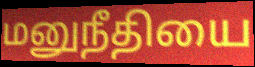
மனுநீதியை